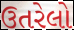
ઉતરેલો